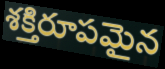
శక్తిరూపమైన